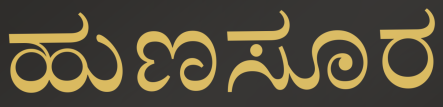
ಹುಣಸೂರ